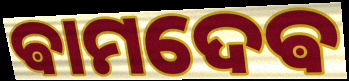
ଵାମଦେଵ